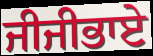
ਜੀਜੀਭਾਏ